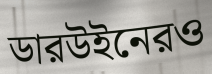
ডারউইনেরও